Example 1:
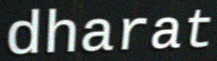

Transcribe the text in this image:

dharat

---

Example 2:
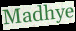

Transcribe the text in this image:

Madhye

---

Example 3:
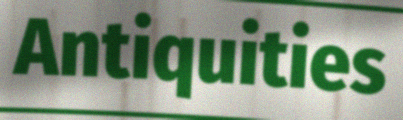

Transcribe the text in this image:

Antiquities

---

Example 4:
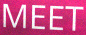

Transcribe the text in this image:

MEET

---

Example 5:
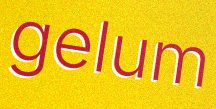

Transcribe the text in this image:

gelum